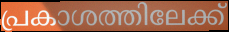
പ്രകാശത്തിലേക്ക്